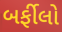
બર્ફીલો